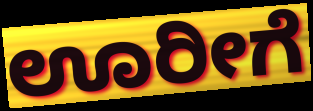
ಊರೀಗೆ